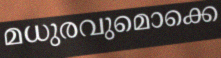
മധുരവുമൊക്കെ